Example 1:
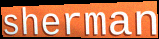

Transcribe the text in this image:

sherman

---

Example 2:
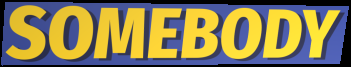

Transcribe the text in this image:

SOMEBODY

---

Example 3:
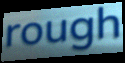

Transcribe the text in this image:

rough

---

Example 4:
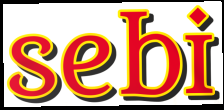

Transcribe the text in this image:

sebi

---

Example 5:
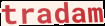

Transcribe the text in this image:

tradam